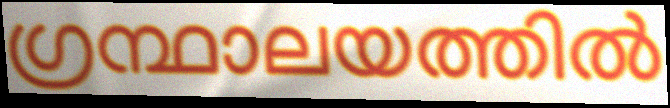
ഗ്രന്ഥാലയത്തിൽ